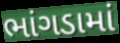
ભાંગડામાં